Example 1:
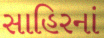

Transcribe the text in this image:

સાહિરનાં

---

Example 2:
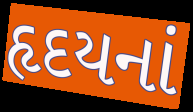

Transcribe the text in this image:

હૃદયનાં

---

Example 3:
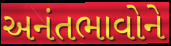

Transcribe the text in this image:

અનંતભાવોને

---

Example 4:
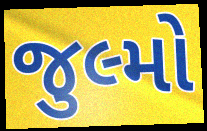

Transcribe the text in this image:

જુલ્મો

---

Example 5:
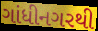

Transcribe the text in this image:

ગાંધીનગરથી